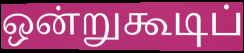
ஒன்றுகூடிப்